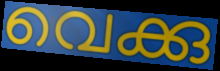
വെക്കു